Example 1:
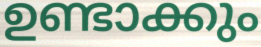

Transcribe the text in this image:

ഉണ്ടാക്കും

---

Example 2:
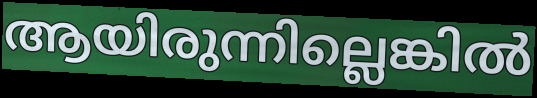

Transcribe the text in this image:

ആയിരുന്നില്ലെങ്കിൽ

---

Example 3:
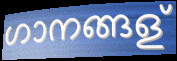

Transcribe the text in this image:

ഗാനങ്ങള്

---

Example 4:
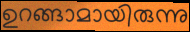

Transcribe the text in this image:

ഉറങ്ങാമായിരുന്നു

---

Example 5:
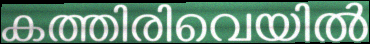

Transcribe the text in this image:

കത്തിരിവെയിൽ